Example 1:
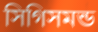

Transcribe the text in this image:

সিগিসমন্ড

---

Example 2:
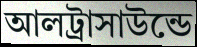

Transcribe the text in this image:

আলট্রাসাউন্ডে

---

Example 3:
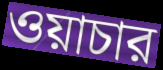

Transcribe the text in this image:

ওয়াচার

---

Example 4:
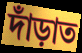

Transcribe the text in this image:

দাঁড়াত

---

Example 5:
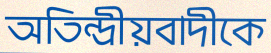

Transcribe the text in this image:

অতিন্দ্রীয়বাদীকে